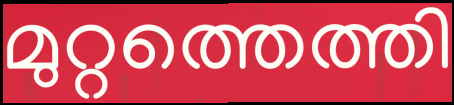
മുറ്റത്തെത്തി